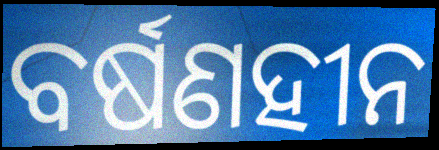
ବର୍ଷଣହୀନ